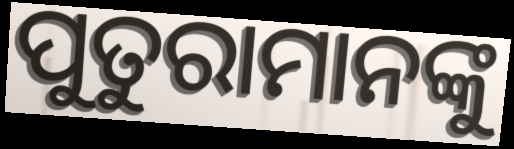
ପୁତୁରାମାନଙ୍କୁ